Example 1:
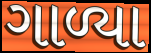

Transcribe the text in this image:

ગાળ્યા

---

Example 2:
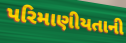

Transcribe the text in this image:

પરિમાણીયતાની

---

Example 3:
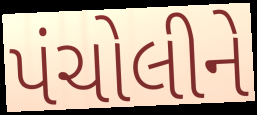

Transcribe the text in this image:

પંચોલીને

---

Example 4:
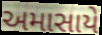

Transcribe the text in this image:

અમાસાયે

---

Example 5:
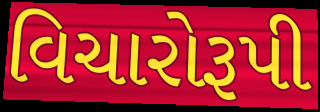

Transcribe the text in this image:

વિચારોરૂપી